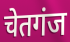
चेतगंज